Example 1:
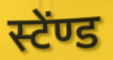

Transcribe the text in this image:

स्टेंण्ड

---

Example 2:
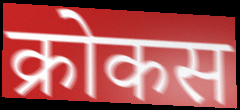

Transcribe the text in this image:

क्रोकस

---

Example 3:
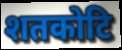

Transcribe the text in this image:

शतकोटि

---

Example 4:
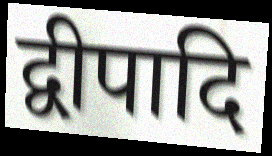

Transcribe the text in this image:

द्वीपादि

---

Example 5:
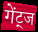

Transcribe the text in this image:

गेंट्ज